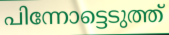
പിന്നോട്ടെടുത്ത്